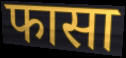
फासा